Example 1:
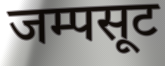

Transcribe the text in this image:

जम्पसूट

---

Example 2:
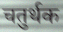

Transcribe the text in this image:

चतुर्थक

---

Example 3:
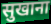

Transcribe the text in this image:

सुखाना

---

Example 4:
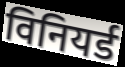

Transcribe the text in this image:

विनियर्ड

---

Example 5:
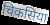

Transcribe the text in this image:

चिकसिया